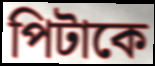
পিটাকে